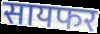
सायफर